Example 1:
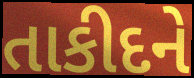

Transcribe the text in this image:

તાકીદને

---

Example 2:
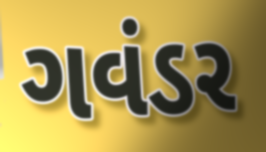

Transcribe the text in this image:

ગવંડર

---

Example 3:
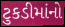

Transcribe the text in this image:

ટુકડીમાંનો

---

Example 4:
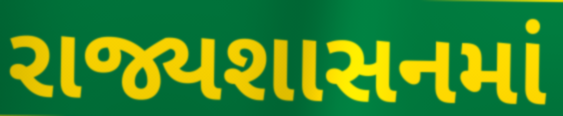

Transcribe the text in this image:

રાજ્યશાસનમાં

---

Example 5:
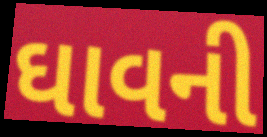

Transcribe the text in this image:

ઘાવની